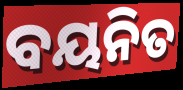
ବୟନିତ